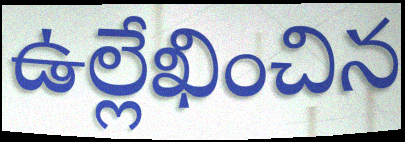
ఉల్లేఖించిన